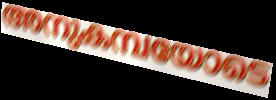
അനുകമ്പയോടെ